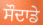
ਸੌਦਾਡੇ